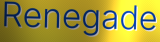
Renegade